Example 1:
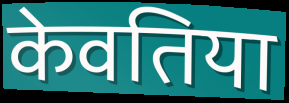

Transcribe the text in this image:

केवतिया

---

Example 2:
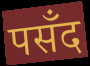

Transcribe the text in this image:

पसँद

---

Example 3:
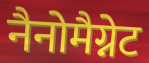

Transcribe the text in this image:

नैनोमैग्नेट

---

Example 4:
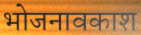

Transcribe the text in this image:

भोजनावकाश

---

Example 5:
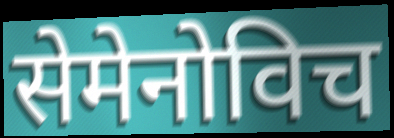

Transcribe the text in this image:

सेमेनोविच